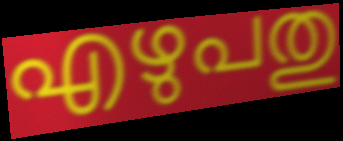
എഴുപതു